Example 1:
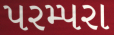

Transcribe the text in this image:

પરમ્પરા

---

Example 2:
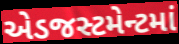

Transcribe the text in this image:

એડજસ્ટમેન્ટમાં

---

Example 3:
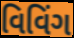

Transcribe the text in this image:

વિવિંગ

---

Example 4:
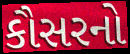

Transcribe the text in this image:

કૌસરનો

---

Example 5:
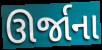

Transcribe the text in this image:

ઊર્જાના